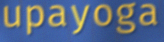
upayoga